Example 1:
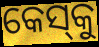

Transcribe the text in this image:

କେସ୍‌କୁ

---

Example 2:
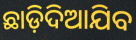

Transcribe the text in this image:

ଛାଡ଼ିଦିଆଯିବ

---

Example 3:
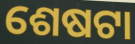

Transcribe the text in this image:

ଶେଷଟା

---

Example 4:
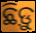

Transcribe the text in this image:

ଛିଡ଼ୁ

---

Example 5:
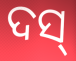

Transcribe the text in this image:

ଦସ୍